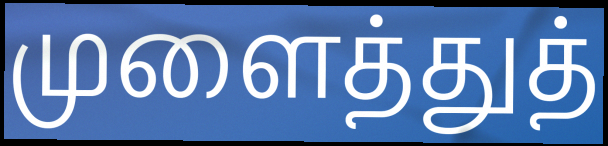
முளைத்துத்